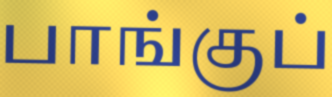
பாங்குப்